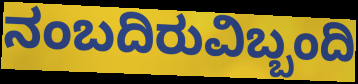
ನಂಬದಿರುವಿಬ್ಬಂದಿ